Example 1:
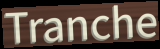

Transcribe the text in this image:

Tranche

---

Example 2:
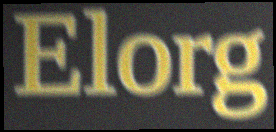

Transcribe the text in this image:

Elorg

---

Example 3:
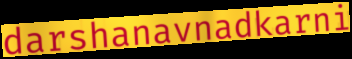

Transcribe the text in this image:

darshanavnadkarni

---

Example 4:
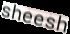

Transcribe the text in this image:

sheesh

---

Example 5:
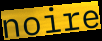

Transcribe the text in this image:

noire